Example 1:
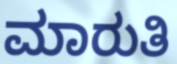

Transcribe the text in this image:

ಮಾರುತಿ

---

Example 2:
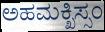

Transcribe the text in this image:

ಅಹಮಕ್ಖಿಸ್ಸಂ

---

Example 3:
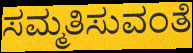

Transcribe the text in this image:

ಸಮ್ಮತಿಸುವಂತೆ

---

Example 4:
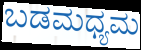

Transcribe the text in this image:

ಬಡಮಧ್ಯಮ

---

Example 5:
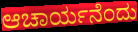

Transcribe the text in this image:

ಆಚಾರ್ಯನೆಂದು